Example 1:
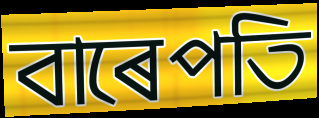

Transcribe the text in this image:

বাৰেপতি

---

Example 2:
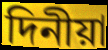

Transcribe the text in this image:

দিনীয়া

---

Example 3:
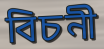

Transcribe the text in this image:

বিচনী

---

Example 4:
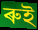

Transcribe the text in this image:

ৰুই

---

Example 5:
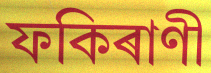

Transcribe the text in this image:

ফকিৰাণী